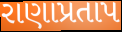
રાણાપ્રતાપ